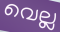
വെല്ല